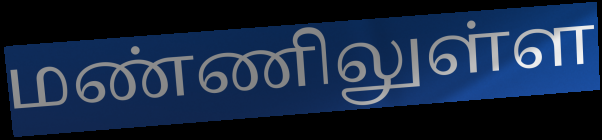
மண்ணிலுள்ள